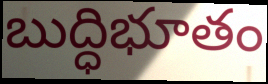
బుద్ధిభూతం